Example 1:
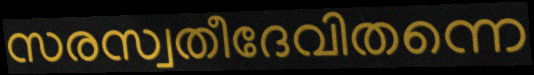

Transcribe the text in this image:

സരസ്വതീദേവിതന്നെ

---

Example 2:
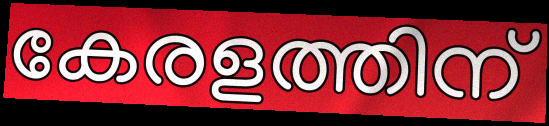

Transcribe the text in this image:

കേരളത്തിന്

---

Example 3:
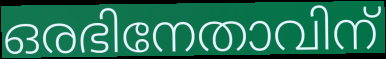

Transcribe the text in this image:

ഒരഭിനേതാവിന്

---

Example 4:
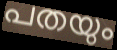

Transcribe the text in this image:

പതയും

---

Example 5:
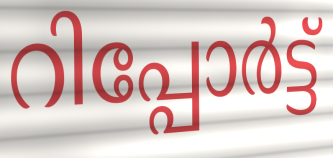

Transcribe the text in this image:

റിപ്പോർട്ട്